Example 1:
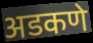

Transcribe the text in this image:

अडकणे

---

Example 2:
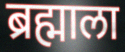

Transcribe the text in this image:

ब्रह्माला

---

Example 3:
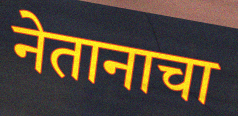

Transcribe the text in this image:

नेतानाचा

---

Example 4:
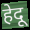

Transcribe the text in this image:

हेदू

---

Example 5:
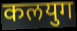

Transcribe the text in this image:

कलयुग